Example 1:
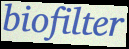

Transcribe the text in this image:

biofilter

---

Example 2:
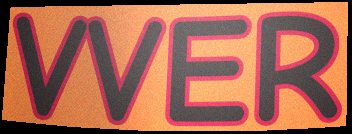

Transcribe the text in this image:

VVER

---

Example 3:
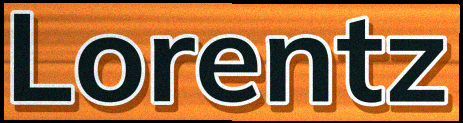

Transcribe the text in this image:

Lorentz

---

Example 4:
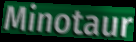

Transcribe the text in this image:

Minotaur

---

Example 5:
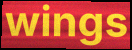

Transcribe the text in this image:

wings